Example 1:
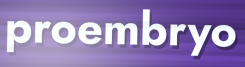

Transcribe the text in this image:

proembryo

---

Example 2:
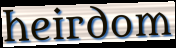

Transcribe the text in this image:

heirdom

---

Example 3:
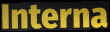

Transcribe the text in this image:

Interna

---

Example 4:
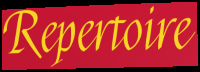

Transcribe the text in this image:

Repertoire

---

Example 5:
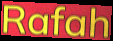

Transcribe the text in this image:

Rafah